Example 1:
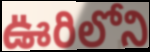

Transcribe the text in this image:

ఊరిలోని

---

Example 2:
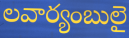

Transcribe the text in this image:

లవార్యంబులై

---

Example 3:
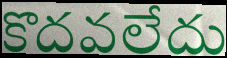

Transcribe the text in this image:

కొదవలేదు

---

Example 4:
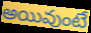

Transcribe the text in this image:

అయివుంటే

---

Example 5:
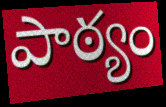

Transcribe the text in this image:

పాఠ్యం